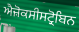
ਐਜ਼ੋਕਸੀਸਟ੍ਰੋਬਿਨ